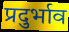
प्रदुर्भाव